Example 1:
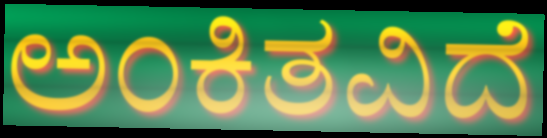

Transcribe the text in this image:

ಅಂಕಿತವಿದೆ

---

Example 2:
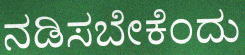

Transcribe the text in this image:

ನಡಿಸಬೇಕೆಂದು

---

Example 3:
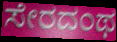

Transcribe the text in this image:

ಸೇರದಂಥ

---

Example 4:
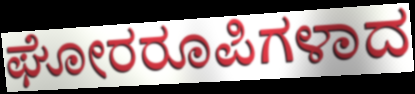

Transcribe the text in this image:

ಘೋರರೂಪಿಗಳಾದ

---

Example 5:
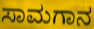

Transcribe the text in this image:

ಸಾಮಗಾನ